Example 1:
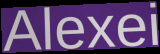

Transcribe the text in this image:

Alexei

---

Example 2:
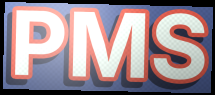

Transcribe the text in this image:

PMS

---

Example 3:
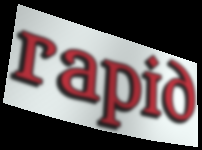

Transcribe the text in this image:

rapid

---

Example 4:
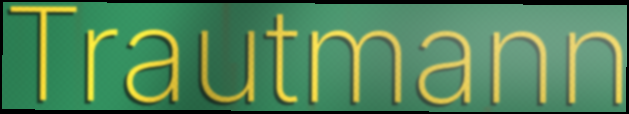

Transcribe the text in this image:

Trautmann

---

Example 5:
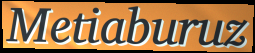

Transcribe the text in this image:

Metiaburuz